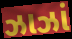
ઝાઝાં